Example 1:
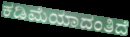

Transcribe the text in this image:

ಕಡಿಮೆಯಾದಂತಿದೆ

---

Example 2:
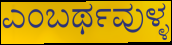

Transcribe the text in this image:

ಎಂಬರ್ಥವುಳ್ಳ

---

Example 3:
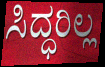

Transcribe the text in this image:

ಸಿದ್ಧರಿಲ್ಲ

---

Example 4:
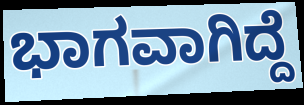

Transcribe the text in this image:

ಭಾಗವಾಗಿದ್ದೆ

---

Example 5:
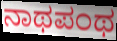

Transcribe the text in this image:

ನಾಥಪಂಥ